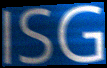
ISG